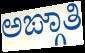
ಅಙ್ಗಾತಿ